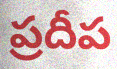
ప్రదీప